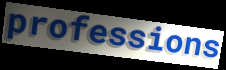
professions